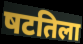
षटतिला